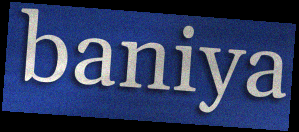
baniya